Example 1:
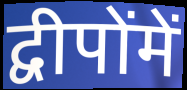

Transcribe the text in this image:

द्वीपोंमें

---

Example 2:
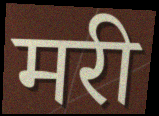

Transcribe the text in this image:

मरी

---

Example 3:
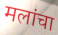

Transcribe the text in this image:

मलांचा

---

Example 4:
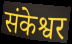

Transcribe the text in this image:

संकेश्वर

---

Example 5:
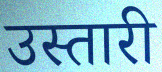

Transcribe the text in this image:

उस्तारी